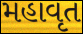
મહાવૃત